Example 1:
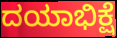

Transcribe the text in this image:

ದಯಾಭಿಕ್ಷೆ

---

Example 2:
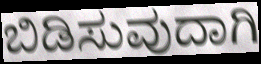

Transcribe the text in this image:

ಬಿಡಿಸುವುದಾಗಿ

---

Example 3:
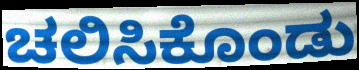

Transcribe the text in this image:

ಚಲಿಸಿಕೊಂಡು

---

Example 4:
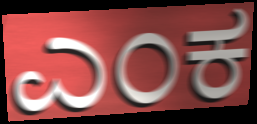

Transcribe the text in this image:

ಎಂಕ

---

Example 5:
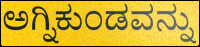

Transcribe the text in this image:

ಅಗ್ನಿಕುಂಡವನ್ನು